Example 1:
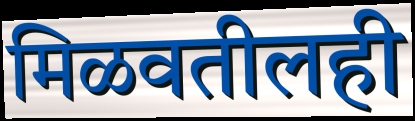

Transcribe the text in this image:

मिळवतीलही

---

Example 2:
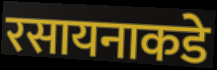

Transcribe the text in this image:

रसायनाकडे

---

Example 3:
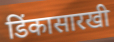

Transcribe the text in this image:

डिंकासारखी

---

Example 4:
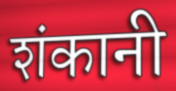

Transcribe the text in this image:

शंकानी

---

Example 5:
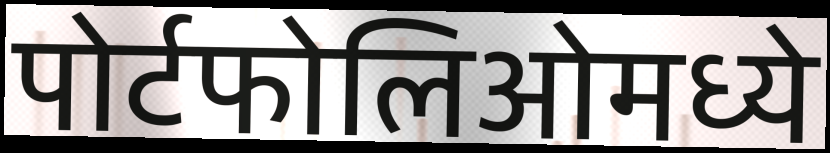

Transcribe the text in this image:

पोर्टफोलिओमध्ये